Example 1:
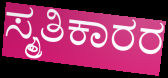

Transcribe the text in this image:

ಸ್ಮೃತಿಕಾರರ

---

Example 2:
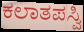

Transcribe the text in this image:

ಕಲಾತಪಸ್ವಿ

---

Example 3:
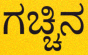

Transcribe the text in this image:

ಗಚ್ಚಿನ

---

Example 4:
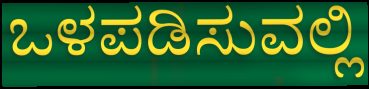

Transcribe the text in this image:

ಒಳಪಡಿಸುವಲ್ಲಿ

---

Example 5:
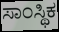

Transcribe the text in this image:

ಸಾಂಸ್ಥಿಕ